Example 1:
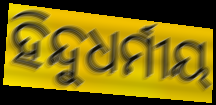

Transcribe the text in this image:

ହିନ୍ଦୁଧର୍ମୀୟ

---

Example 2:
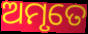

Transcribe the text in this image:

ଅମୃତେ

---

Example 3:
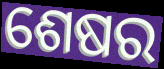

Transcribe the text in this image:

ଶେଷର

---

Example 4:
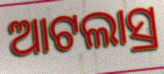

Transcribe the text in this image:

ଆଟଲାସ୍ର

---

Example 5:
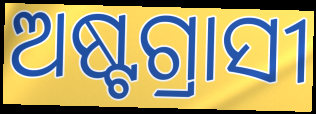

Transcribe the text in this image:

ଅଷ୍ଟଗ୍ରାସୀ